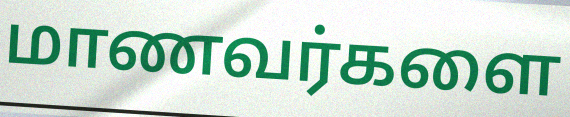
மாணவர்களை